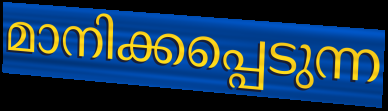
മാനിക്കപ്പെടുന്ന